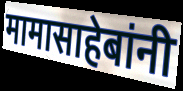
मामासाहेबांनी